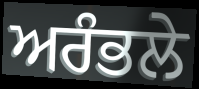
ਅਰੰਭਲੇ